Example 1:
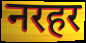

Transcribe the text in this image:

नरहर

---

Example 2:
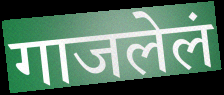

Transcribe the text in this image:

गाजलेलं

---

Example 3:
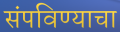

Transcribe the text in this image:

संपविण्याचा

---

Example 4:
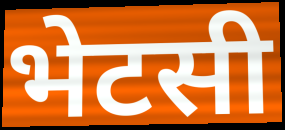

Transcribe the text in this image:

भेटसी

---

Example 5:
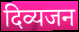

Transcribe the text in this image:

दिव्यजन